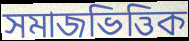
সমাজভিত্তিক